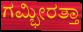
ಗಮ್ಭೀರತ್ತಾ